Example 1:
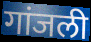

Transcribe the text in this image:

गांजली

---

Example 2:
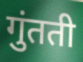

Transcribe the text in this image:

गुंतती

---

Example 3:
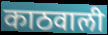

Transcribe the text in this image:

काठवाली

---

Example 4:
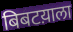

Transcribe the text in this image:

बिबटय़ाला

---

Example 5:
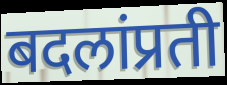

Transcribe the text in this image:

बदलांप्रती